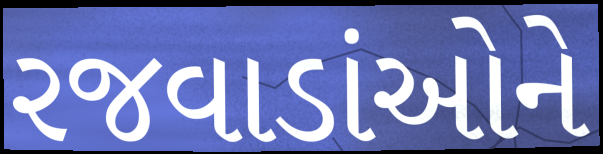
રજવાડાંઓને